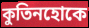
কুতিনহোকে